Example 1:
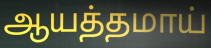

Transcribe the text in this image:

ஆயத்தமாய்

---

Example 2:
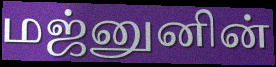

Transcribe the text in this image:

மஜ்னுனின்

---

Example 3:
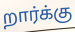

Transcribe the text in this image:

றார்க்கு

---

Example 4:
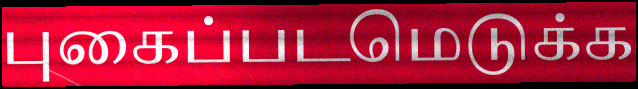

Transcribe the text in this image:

புகைப்படமெடுக்க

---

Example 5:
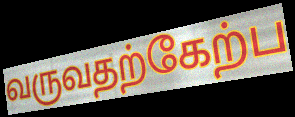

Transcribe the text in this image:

வருவதற்கேற்ப